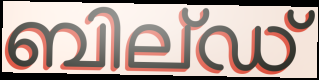
ബില്ഡ്